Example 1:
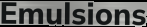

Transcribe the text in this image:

Emulsions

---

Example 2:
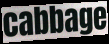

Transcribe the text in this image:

cabbage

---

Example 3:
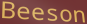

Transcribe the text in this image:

Beeson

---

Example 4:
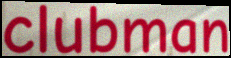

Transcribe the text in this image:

clubman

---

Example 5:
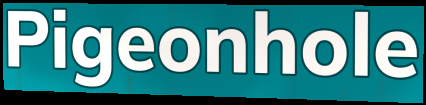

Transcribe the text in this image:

Pigeonhole